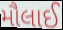
મૌલાઈ